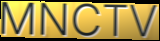
MNCTV